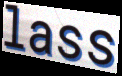
lass